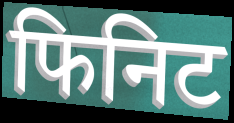
फिनिट